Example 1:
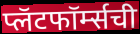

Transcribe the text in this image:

प्लॅटफॉर्म्सची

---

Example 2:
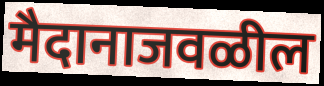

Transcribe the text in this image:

मैदानाजवळील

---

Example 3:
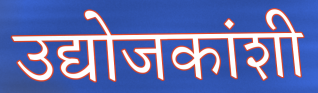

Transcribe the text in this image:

उद्योजकांशी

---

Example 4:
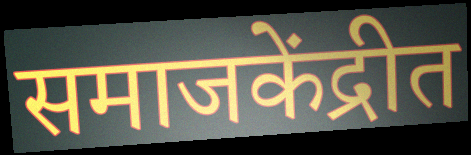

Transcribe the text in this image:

समाजकेंद्रीत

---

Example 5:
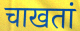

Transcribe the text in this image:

चाखतां